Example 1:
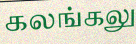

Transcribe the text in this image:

கலங்கலு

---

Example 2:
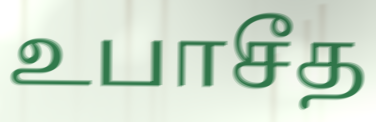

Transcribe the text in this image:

உபாசீத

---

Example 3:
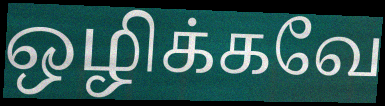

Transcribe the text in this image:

ஒழிக்கவே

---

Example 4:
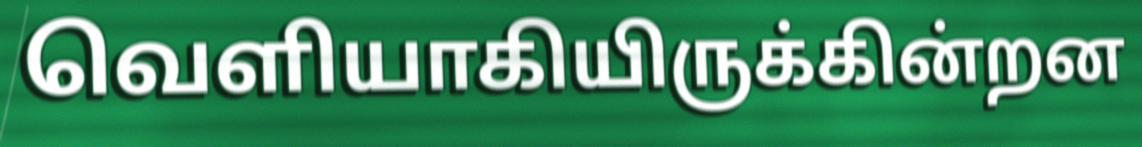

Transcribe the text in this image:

வெளியாகியிருக்கின்றன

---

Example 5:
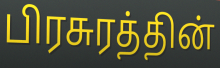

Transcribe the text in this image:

பிரசுரத்தின்